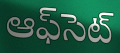
ఆఫ్‌సెట్